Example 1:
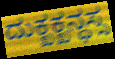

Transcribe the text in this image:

ದುಕ್ಖಕ್ಖನ್ಧಸ್ಸ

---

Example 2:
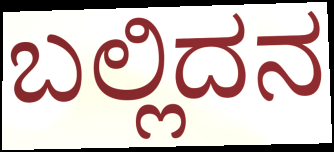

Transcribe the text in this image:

ಬಲ್ಲಿದನ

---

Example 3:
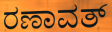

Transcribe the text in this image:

ರಣಾವತ್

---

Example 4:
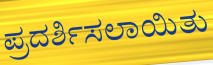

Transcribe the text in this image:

ಪ್ರದರ್ಶಿಸಲಾಯಿತು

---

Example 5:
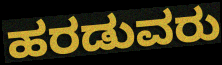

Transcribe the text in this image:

ಹರಡುವರು